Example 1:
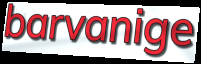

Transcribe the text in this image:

barvanige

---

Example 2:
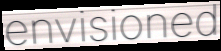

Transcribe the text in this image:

envisioned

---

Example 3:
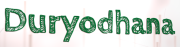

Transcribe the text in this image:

Duryodhana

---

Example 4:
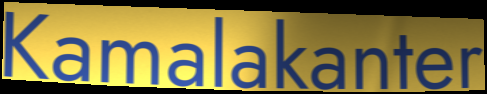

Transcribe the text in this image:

Kamalakanter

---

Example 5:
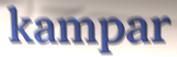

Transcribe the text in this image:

kampar